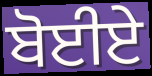
ਬੋਈਏ